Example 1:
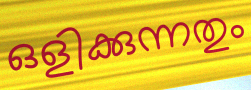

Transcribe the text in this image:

ഒളിക്കുന്നതും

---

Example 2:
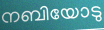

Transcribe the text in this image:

നബിയോടു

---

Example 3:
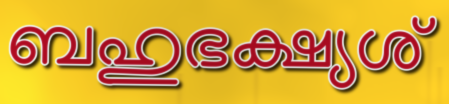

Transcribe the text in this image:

ബഹുഭക്ഷ്യശ്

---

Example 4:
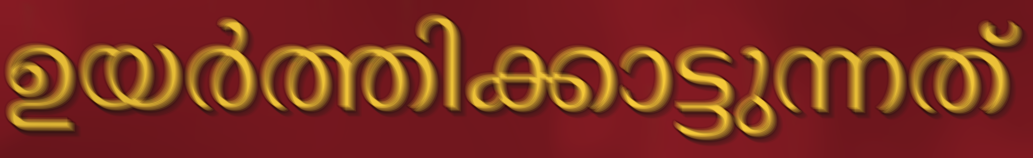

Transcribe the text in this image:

ഉയർത്തിക്കാട്ടുന്നത്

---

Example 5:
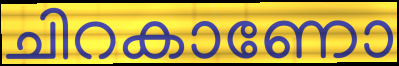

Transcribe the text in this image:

ചിറകാണോ